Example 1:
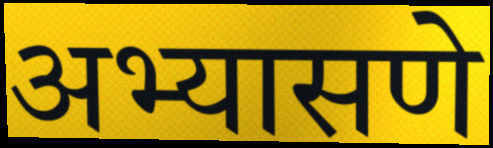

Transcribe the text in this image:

अभ्यासणे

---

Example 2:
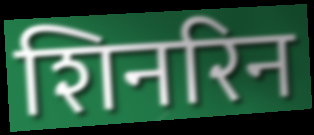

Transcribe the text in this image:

शिनरिन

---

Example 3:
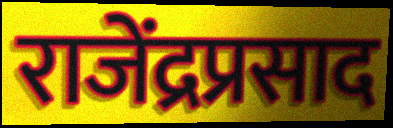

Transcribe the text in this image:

राजेंद्रप्रसाद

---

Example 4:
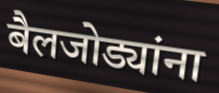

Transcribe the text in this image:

बैलजोड्यांना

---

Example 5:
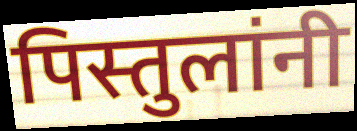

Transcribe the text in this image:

पिस्तुलांनी